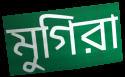
মুগিরা